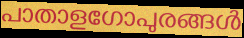
പാതാളഗോപുരങ്ങൾ